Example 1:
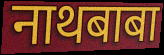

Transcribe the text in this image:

नाथबाबा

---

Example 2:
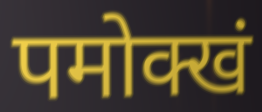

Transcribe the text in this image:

पमोक्खं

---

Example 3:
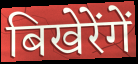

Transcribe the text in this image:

बिखेरेंगें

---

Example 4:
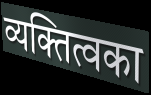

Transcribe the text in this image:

व्यक्तित्वका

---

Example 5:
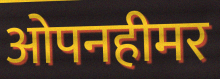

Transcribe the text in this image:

ओपनहीमर